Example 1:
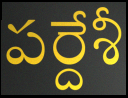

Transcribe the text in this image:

పర్దేశీ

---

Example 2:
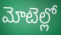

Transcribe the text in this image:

మోటెల్లో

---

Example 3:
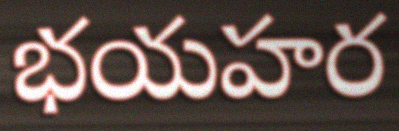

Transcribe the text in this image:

భయహర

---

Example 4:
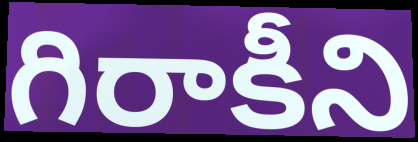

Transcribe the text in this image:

గిరాకీని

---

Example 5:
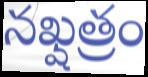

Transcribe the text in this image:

నఖ్షత్రం